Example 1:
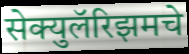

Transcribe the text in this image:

सेक्युलॅरिझमचे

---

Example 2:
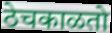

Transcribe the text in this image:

ठेचकाळतो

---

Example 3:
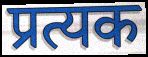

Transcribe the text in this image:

प्रत्यक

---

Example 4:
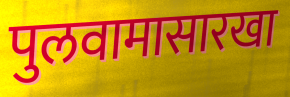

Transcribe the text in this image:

पुलवामासारखा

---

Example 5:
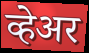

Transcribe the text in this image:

व्हेअर